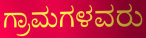
ಗ್ರಾಮಗಳವರು